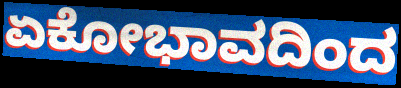
ಏಕೋಭಾವದಿಂದ